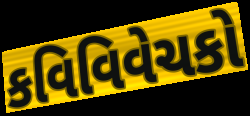
કવિવિવેચકો